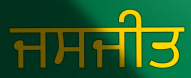
ਜਸਜੀਤ